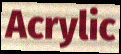
Acrylic